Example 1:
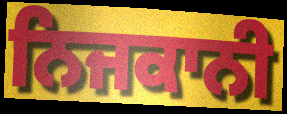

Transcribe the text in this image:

ਨਿਜਕਾਨੀ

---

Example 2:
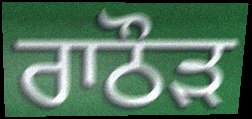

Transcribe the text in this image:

ਰਾਠੌੜ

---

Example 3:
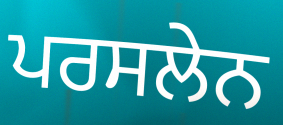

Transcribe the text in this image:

ਪਰਸਲੇਨ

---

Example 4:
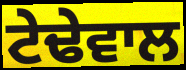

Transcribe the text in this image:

ਟੇਢੇਵਾਲ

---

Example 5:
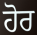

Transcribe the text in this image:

ਹੋਰ